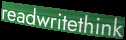
readwritethink